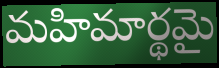
మహిమార్థమై